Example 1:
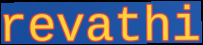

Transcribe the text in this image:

revathi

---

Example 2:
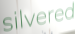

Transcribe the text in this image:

silvered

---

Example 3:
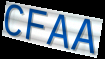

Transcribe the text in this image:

CFAA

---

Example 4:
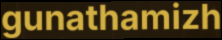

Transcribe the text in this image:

gunathamizh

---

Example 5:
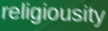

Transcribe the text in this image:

religiousity